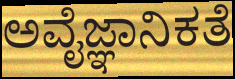
ಅವೈಜ್ಞಾನಿಕತೆ